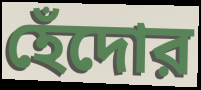
হেঁদোর